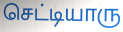
செட்டியாரு